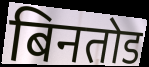
बिनतोड